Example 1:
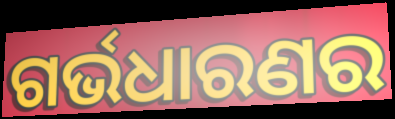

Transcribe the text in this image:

ଗର୍ଭଧାରଣର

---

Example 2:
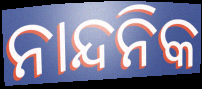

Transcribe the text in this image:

ନାନ୍ଦନିକ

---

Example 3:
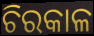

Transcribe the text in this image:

ଚିରକାଳ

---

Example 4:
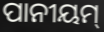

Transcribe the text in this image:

ପାନୀୟମ୍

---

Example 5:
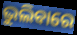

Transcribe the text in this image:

ଭୁଲିବାରେ